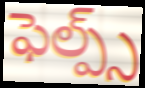
ఫెల్ప్స్